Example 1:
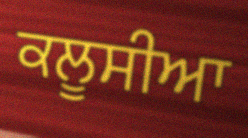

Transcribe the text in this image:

ਕਲੂਸੀਆ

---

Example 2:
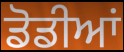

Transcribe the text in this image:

ਡੋਡੀਆਂ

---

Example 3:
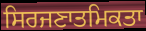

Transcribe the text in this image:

ਸਿਰਜਣਾਤਮਿਕਤਾ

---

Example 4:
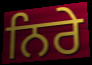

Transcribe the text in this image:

ਨਿਰੇ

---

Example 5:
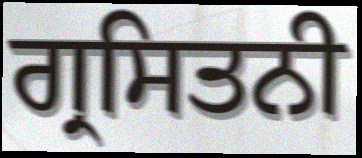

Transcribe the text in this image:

ਗ੍ਰਸਿਤਨੀ